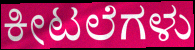
ಕೀಟಲೆಗಳು